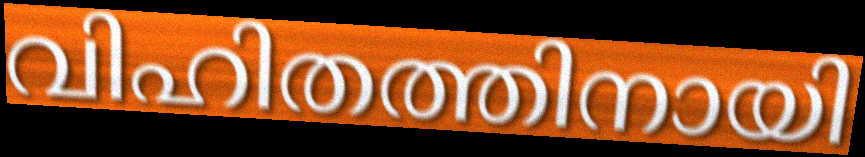
വിഹിതത്തിനായി